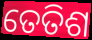
ତେତିଶ